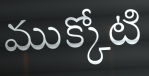
ముక్కోటి